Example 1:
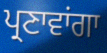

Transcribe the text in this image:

ਪ੍ਰਣਾਵਾਂਗਾ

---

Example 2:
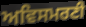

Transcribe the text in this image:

ਅਵਿਸਮਰਣੀ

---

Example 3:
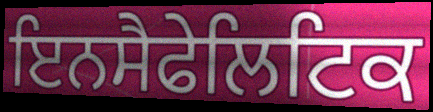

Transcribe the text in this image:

ਇਨਸੈਫੇਲਿਟਿਕ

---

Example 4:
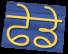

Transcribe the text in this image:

ਫੇਡੇ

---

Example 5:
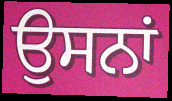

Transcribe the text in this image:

ਉਸਨਾਂ